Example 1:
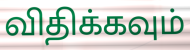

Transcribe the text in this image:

விதிக்கவும்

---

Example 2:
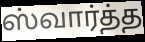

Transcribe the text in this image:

ஸ்வார்த்த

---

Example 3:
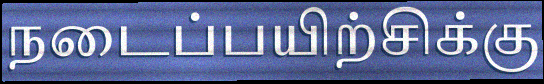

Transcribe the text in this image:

நடைப்பயிற்சிக்கு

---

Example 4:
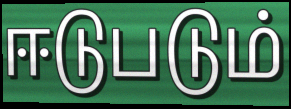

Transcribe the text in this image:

ஈடுபடும்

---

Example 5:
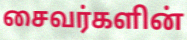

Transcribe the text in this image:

சைவர்களின்